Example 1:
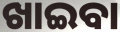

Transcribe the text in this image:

ଖାଇବା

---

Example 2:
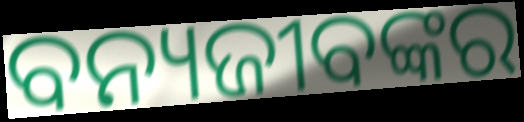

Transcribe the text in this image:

ବନ୍ୟଜୀବଙ୍କର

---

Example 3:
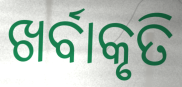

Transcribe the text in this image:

ଖର୍ବାକୃତି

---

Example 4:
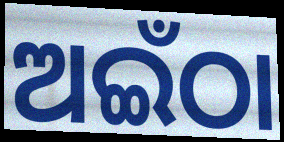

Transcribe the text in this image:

ଅଇଁଠା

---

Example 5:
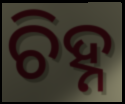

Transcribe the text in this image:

ଚିହ୍ନ